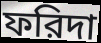
ফরিদা